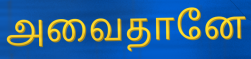
அவைதானே